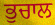
ਭੁਚਾਲ